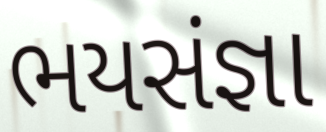
ભયસંજ્ઞા